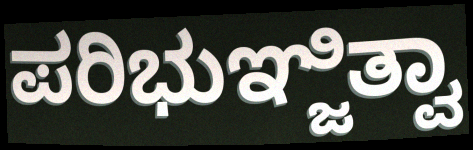
ಪರಿಭುಞ್ಜಿತ್ವಾ